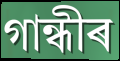
গান্ধীৰ